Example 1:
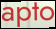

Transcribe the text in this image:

apto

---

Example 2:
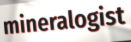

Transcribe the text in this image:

mineralogist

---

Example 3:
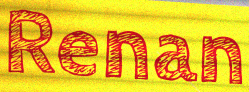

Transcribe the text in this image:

Renan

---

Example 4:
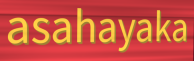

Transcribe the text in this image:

asahayaka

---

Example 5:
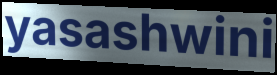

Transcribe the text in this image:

yasashwini